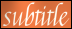
subtitle